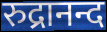
रुद्रानन्द